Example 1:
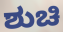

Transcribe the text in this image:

ಶುಚಿ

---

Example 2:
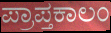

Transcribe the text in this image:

ಪ್ರಾಪ್ತಕಾಲಂ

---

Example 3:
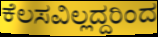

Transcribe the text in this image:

ಕೆಲಸವಿಲ್ಲದ್ದರಿಂದ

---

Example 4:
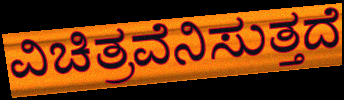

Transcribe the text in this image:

ವಿಚಿತ್ರವೆನಿಸುತ್ತದೆ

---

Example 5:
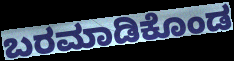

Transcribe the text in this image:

ಬರಮಾಡಿಕೊಂಡ